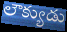
లౌక్యుడు